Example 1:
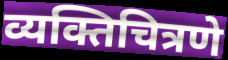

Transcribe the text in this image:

व्यक्तिचित्रणे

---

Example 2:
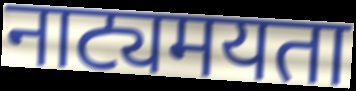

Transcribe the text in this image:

नाट्यमयता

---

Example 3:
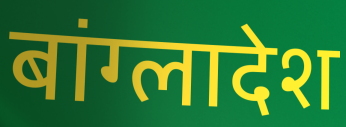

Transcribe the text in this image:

बांग्लादेश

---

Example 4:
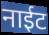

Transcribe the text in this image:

नाईट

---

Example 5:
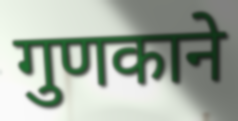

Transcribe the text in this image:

गुणकाने